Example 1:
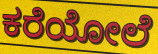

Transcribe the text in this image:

ಕರೆಯೋಲೆ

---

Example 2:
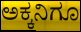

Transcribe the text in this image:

ಅಕ್ಕನಿಗೂ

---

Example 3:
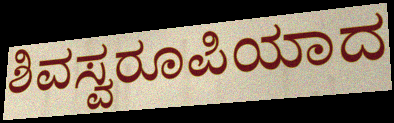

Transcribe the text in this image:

ಶಿವಸ್ವರೂಪಿಯಾದ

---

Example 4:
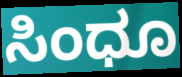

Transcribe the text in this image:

ಸಿಂಧೂ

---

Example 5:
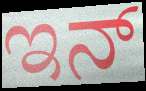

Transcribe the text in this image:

ಇನ್